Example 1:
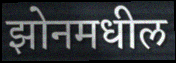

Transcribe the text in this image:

झोनमधील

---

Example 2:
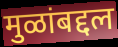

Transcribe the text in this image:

मुळांबद्दल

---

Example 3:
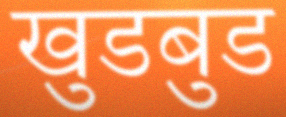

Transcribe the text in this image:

खुडबुड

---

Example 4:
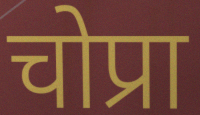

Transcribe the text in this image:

चोप्रा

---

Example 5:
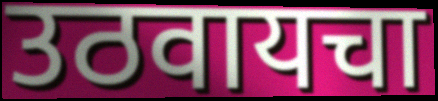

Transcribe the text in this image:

उठवायचा